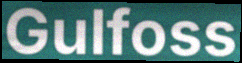
Gulfoss